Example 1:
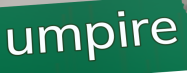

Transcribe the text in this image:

umpire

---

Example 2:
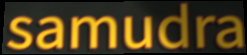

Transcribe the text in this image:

samudra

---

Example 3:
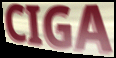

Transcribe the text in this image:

CIGA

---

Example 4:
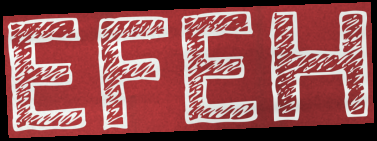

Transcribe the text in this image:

EFEH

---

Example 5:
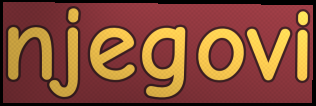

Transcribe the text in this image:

njegovi